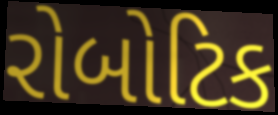
રોબોટિક